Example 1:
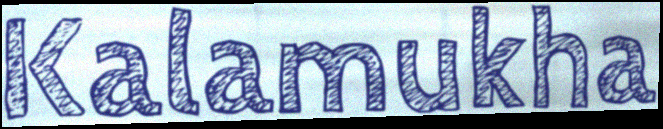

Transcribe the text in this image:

Kalamukha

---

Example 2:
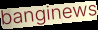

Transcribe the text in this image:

banginews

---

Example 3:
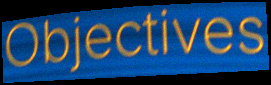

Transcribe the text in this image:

Objectives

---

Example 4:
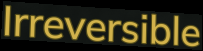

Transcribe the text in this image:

Irreversible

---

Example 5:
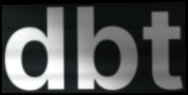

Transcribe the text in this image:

dbt